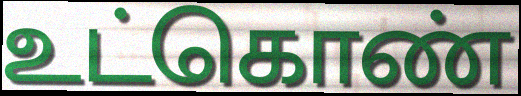
உட்கொண்